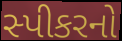
સ્પીકરનો